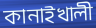
কানাইখালী